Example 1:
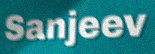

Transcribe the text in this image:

Sanjeev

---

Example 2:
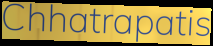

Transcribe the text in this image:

Chhatrapatis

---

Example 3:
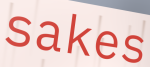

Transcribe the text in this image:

sakes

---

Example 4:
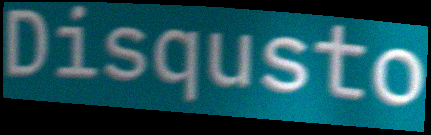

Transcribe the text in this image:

Disqusto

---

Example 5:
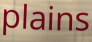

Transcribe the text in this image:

plains